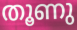
തൂണു